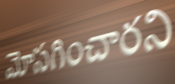
మోసగించారని